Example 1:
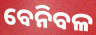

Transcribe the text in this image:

ବେନିବଳ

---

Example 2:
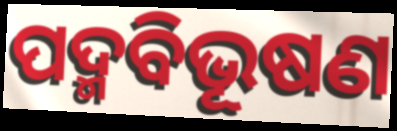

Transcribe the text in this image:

ପଦ୍ମବିଭୂଷଣ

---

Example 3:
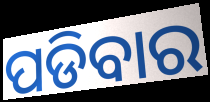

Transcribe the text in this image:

ପଡିବାର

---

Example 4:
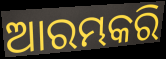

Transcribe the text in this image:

ଆରମ୍ଭକରି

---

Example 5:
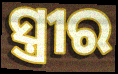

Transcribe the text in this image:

ସ୍ତ୍ରୀର